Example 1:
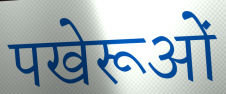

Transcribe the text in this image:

पखेरूओं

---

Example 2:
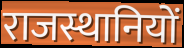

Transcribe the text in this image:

राजस्थानियों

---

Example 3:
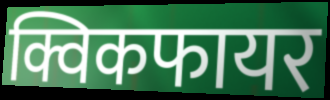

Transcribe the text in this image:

क्विकफायर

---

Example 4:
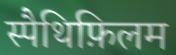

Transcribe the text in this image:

स्पैथिफ़िलम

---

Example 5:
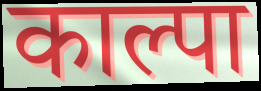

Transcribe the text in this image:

काल्पा